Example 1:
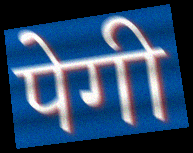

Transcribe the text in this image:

पेगी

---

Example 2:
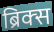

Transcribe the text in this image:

ब्रिक्‍स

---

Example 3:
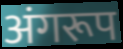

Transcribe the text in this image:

अंगरूप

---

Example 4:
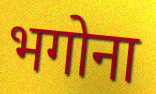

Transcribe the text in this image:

भगोना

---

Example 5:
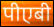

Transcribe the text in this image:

पीएबी